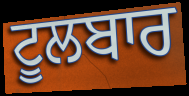
ਟੂਲਬਾਰ